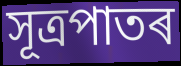
সূত্ৰপাতৰ